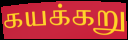
கயக்கறு